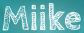
Miike